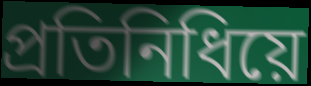
প্ৰতিনিধিয়ে